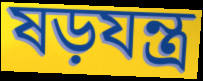
ষড়যন্ত্র